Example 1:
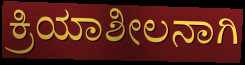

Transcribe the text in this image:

ಕ್ರಿಯಾಶೀಲನಾಗಿ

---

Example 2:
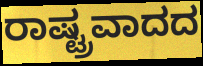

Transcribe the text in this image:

ರಾಷ್ಟ್ರವಾದದ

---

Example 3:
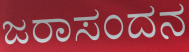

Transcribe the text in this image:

ಜರಾಸಂದನ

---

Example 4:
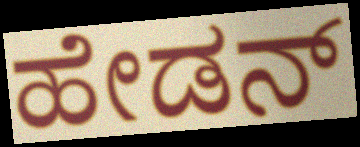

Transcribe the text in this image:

ಹೇಡನ್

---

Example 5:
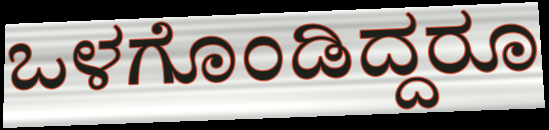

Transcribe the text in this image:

ಒಳಗೊಂಡಿದ್ದರೂ